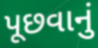
પૂછવાનું